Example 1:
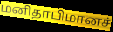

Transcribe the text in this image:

மனிதாபிமானச்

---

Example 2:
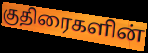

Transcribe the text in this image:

குதிரைகளின்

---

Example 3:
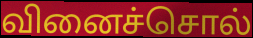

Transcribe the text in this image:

வினைச்சொல்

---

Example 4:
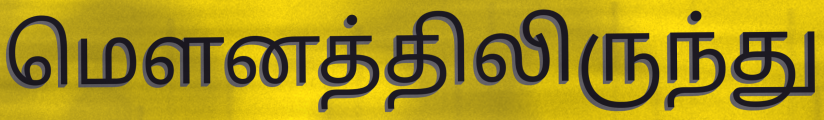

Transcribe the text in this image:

மௌனத்திலிருந்து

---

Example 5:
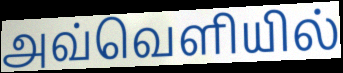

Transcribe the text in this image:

அவ்வெளியில்